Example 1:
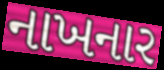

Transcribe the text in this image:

નાખનાર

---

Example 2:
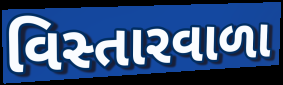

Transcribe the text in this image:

વિસ્તારવાળા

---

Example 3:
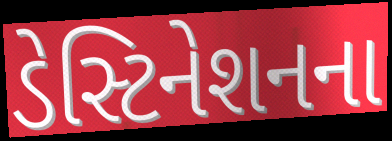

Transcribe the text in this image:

ડેસ્ટિનેશનના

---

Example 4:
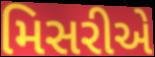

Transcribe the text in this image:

મિસરીએ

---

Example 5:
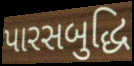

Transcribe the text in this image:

પારસબુદ્ધિ